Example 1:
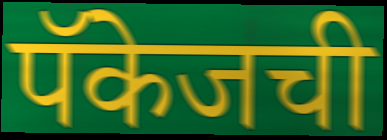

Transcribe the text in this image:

पॅकेजची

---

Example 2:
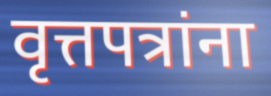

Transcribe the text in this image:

वृत्तपत्रांना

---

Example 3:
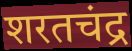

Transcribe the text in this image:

शरतचंद्र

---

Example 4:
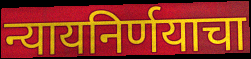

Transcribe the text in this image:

न्यायनिर्णयाचा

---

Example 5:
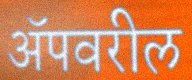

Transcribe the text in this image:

ॲपवरील